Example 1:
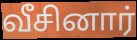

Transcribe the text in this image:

வீசினார்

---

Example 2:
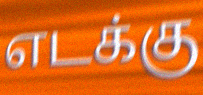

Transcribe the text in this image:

எடக்கு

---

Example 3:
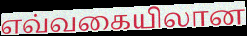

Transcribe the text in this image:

எவ்வகையிலான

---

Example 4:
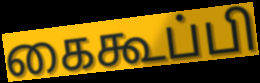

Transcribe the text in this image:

கைகூப்பி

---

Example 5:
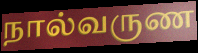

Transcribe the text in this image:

நால்வருண